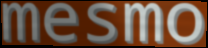
mesmo